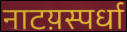
नाटय़स्पर्धा